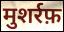
मुशर्रफ़